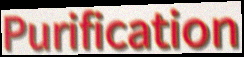
Purification